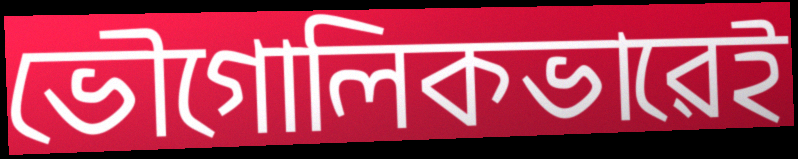
ভৌগোলিকভাৱেই